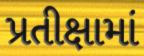
પ્રતીક્ષામાં